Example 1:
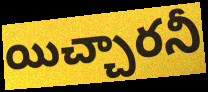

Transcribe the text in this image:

యిచ్చారనీ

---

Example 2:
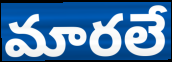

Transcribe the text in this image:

మారలే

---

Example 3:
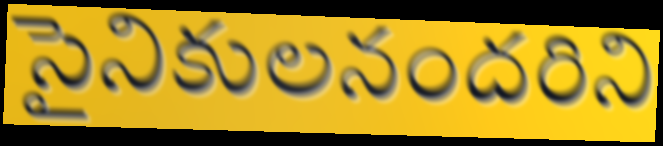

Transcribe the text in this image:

సైనికులనందరిని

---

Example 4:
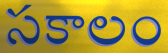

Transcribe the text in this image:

సకాలం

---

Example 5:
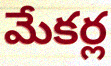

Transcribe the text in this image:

మేకర్ల